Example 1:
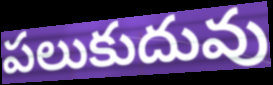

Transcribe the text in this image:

పలుకుదువు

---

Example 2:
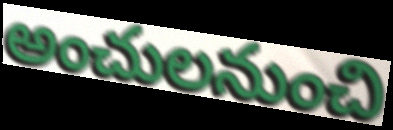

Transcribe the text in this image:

అంచులనుంచి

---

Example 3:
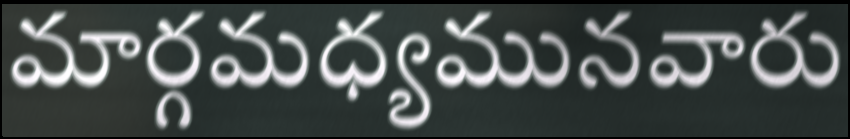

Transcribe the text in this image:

మార్గమధ్యమునవారు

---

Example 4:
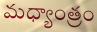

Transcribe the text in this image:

మధ్యాంత్రం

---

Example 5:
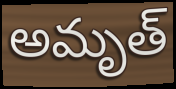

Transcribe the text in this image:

అమృత్